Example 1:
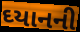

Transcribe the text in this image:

ઘ્યાનની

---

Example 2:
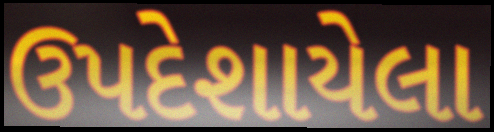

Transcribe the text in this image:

ઉપદેશાયેલા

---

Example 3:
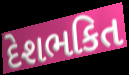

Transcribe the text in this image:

દેશભકિત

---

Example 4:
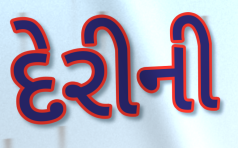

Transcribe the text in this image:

દેરીની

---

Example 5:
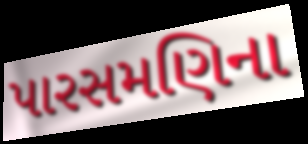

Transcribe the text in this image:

પારસમણિના